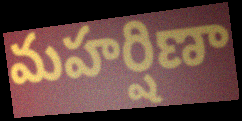
మహర్షిణా